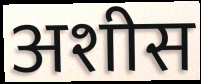
अशीस